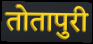
तोतापुरी